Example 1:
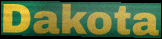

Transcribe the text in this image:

Dakota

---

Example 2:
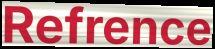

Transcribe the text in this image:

Refrence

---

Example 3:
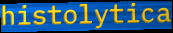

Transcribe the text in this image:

histolytica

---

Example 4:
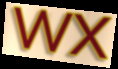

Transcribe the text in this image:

WX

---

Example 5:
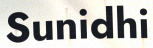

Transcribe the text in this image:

Sunidhi